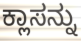
ಕ್ಲಾಸನ್ನು